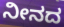
ನೀನದ